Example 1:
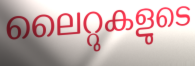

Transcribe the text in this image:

ലൈറ്റുകളുടെ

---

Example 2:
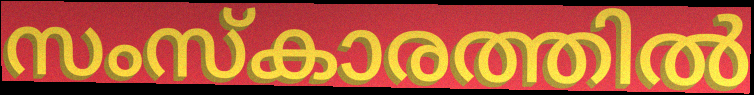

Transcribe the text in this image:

സംസ്കാരത്തിൽ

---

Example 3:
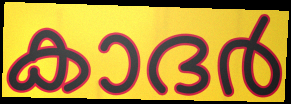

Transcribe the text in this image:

കാദർ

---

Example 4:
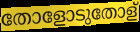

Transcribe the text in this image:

തോളോടുതോള്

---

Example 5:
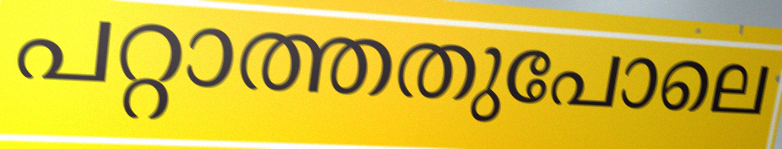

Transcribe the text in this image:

പറ്റാത്തതുപോലെ